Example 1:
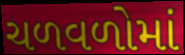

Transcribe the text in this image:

ચળવળોમાં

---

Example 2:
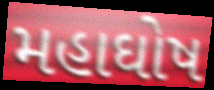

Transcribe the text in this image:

મહાઘોષ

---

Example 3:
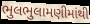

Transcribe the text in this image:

ભુલભુલામણીમાંથી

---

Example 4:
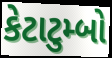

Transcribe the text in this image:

કેટાટુમ્બો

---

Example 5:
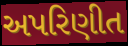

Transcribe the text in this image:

અપરિણીત